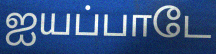
ஐயப்பாடே